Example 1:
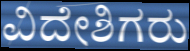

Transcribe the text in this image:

ವಿದೇಶಿಗರು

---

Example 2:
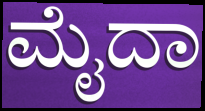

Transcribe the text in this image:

ಮೈದಾ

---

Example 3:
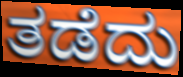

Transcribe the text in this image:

ತಡೆದು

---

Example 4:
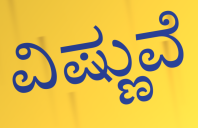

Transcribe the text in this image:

ವಿಷ್ಣುವೆ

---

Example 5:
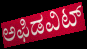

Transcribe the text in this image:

ಅಫಿಡವಿಟ್